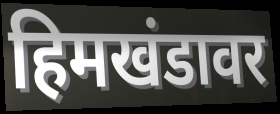
हिमखंडावर